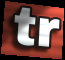
tr